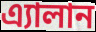
এ্যালান